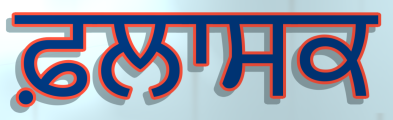
ਫ਼ਲਾਸਕ